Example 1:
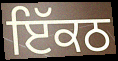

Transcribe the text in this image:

ਇੱਕਠ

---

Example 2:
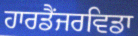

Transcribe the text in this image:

ਹਾਰਡੈਂਜਰਵਿਡਾ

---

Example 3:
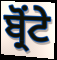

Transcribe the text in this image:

ਬ੍ਰੋਂਟੇ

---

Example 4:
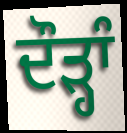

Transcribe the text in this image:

ਦੌੜ੍ਹਾੰ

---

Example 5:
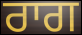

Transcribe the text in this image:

ਰਾਗ